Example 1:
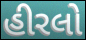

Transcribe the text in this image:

હીરલો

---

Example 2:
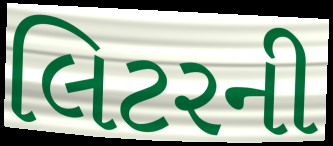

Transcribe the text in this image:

લિટરની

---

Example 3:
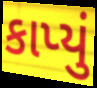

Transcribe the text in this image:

કાપ્યું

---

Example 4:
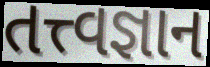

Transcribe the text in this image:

તત્ત્વજ્ઞાન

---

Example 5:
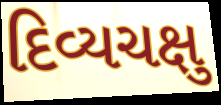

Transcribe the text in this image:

દિવ્યચક્ષુ